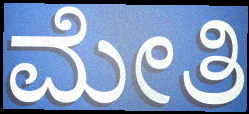
ಮೇತಿ